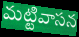
మట్టివాసన